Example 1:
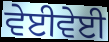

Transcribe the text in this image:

ਵੇਈਵੇਈ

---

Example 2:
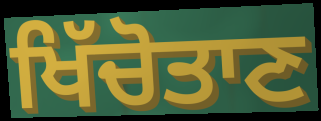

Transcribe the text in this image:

ਖਿੱਚੋਤਾਣ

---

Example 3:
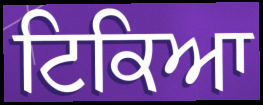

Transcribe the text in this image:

ਟਿਕਿਆ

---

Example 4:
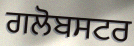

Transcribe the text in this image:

ਗਲੋਬਸਟਰ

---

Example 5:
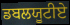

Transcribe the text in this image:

ਡਬਲਯੂਟੀਏ